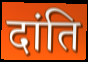
दांति